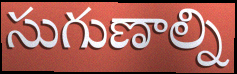
సుగుణాల్ని